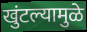
खुंटल्यामुळे